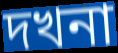
দখনা